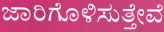
ಜಾರಿಗೊಳಿಸುತ್ತೇವೆ